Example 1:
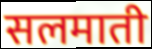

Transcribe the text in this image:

सलमाती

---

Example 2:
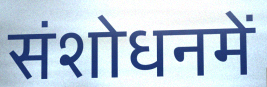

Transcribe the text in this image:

संशोधनमें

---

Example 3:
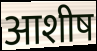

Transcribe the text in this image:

आशीष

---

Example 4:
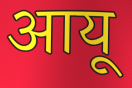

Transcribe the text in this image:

आयू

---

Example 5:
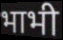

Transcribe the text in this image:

भाभी